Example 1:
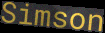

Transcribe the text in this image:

Simson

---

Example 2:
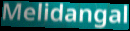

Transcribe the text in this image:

Melidangal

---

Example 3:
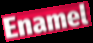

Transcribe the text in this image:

Enamel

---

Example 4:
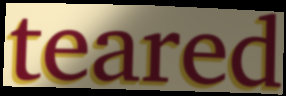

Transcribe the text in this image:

teared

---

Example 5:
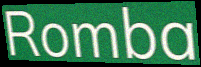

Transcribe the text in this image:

Romba